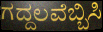
ಗದ್ದಲವೆಬ್ಬಿಸಿ